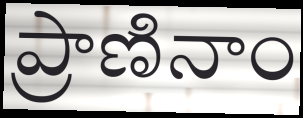
ప్రాణినాం